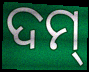
ଦମ୍